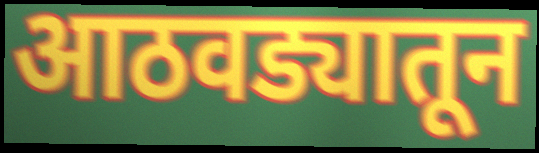
आठवड्यातून